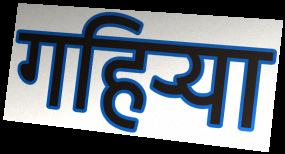
गहिर्‍या